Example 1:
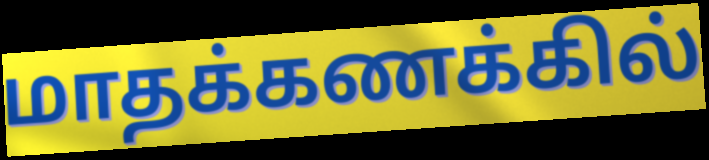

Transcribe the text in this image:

மாதக்கணக்கில்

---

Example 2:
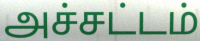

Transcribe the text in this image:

அச்சட்டம்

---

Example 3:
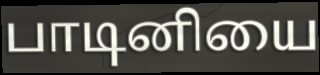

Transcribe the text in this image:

பாடினியை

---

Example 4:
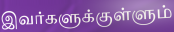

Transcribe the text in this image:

இவர்களுக்குள்ளும்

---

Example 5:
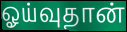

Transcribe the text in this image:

ஓய்வுதான்